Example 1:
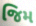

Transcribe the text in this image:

જિમ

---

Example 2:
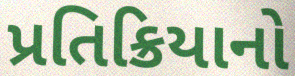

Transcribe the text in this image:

પ્રતિક્રિયાનો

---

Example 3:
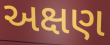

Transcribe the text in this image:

અક્ષણ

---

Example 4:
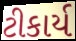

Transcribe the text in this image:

ટીકાર્ય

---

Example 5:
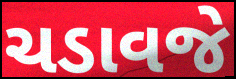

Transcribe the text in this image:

ચડાવજે